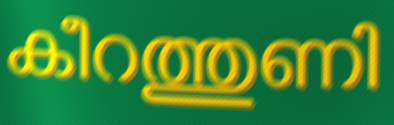
കീറത്തുണി